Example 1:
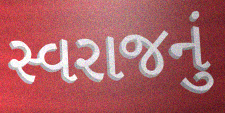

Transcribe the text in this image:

સ્વરાજનું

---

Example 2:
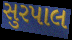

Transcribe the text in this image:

સુરપાલ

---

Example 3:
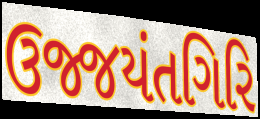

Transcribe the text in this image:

ઉજ્જયંતગિરિ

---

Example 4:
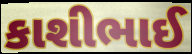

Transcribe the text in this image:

કાશીભાઈ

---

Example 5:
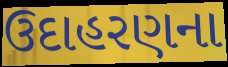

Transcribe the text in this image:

ઉદાહરણના